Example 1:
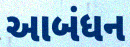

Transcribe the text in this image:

આબંધન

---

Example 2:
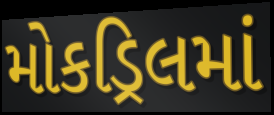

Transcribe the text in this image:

મોકડ્રિલમાં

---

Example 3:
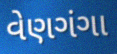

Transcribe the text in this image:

વેણગંગા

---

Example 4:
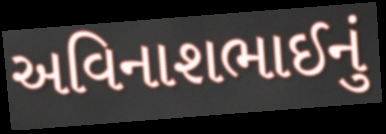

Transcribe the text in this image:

અવિનાશભાઈનું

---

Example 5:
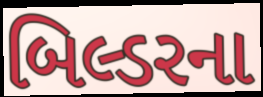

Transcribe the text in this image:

બિલ્ડરના